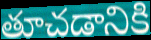
తూచడానికి